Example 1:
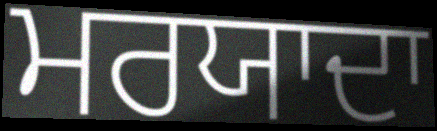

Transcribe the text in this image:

ਮਰਯਾਦਾ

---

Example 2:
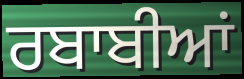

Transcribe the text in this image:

ਰਬਾਬੀਆਂ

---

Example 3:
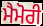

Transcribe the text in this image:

ਮੈਮੋਰੀ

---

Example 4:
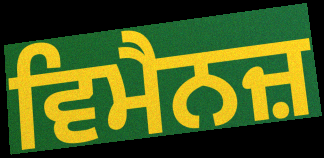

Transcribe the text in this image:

ਵਿਮੈਨਜ਼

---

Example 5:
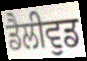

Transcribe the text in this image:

ਡੈਲੀਵੁਡ